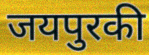
जयपुरकी